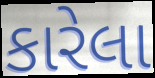
કારેલા